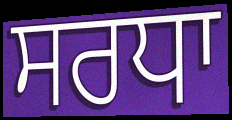
ਸਰਧਾ